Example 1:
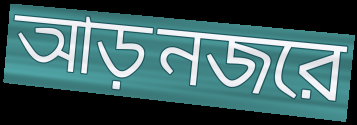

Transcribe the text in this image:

আড়নজরে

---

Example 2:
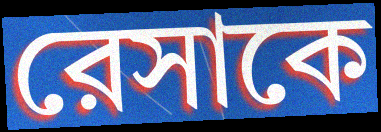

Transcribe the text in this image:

রেসাকে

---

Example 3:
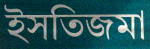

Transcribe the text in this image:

ইসতিজমা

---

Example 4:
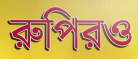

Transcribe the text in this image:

রুপিরও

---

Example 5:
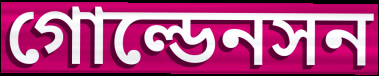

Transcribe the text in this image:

গোল্ডেনসন